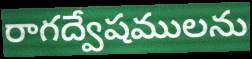
రాగద్వేషములను